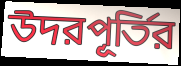
উদরপূর্তির